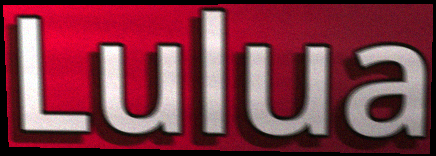
Lulua